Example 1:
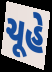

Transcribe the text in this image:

ચૂહે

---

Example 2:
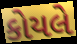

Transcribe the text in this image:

કોયલે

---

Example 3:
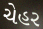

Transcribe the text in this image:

ચેહર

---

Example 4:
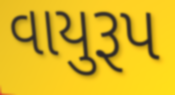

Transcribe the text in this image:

વાયુરૂપ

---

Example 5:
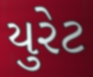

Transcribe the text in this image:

યુરેટ